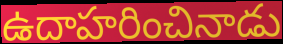
ఉదాహరించినాడు